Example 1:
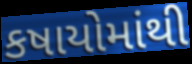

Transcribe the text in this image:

કષાયોમાંથી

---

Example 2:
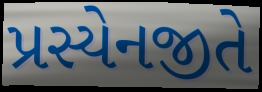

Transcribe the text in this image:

પ્રસ્યેનજીતે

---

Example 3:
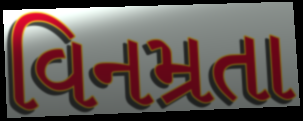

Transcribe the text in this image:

વિનમ્રતા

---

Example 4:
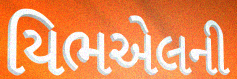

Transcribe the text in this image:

યિભએલની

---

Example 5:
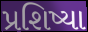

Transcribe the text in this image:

પ્રશિષ્યા